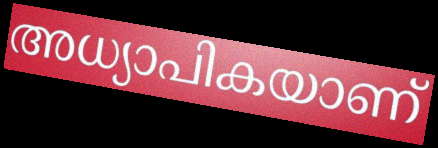
അധ്യാപികയാണ്